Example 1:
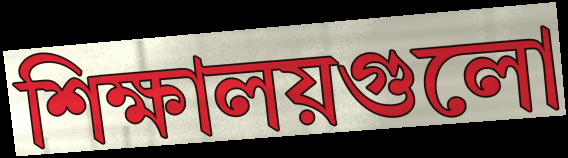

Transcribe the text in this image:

শিক্ষালয়গুলো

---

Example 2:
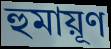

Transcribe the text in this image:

হুমায়ূণ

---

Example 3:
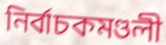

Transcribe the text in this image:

নির্বাচকমণ্ডলী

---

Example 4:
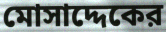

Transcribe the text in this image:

মোসাদ্দেকের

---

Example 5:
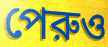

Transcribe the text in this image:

পেরুও